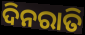
ଦିନରାତି